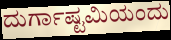
ದುರ್ಗಾಷ್ಟಮಿಯಂದು